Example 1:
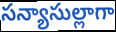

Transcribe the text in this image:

సన్యాసుల్లాగా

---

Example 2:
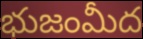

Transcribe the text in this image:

భుజంమీద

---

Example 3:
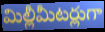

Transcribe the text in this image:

మిల్లీమీటర్లుగా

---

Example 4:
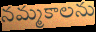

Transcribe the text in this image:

నమ్మకాలను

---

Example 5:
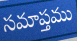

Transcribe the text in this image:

సమాప్తము